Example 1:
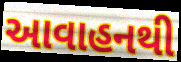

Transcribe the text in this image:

આવાહનથી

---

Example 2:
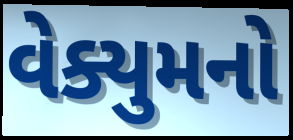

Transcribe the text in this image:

વેક્યુમનો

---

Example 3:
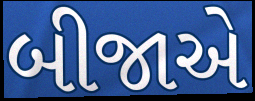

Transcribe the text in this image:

બીજાએ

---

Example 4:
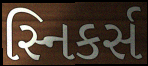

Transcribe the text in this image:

સ્નિકર્સ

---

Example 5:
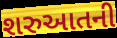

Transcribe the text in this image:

શરુઆતની